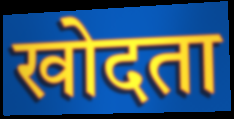
खोदता